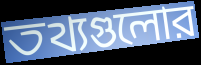
তথ্যগুলোর